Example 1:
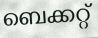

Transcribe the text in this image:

ബെക്കറ്റ്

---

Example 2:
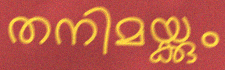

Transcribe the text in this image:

തനിമയ്ക്കും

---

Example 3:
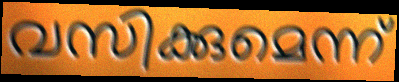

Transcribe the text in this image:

വസിക്കുമെന്ന്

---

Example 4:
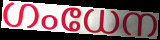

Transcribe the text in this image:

ഗംധേന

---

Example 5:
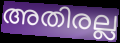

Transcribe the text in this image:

അതിരല്ല